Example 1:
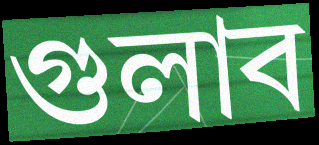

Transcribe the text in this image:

গুলাব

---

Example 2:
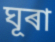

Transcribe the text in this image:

ঘূৰা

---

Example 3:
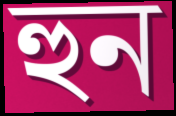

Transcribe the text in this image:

হুন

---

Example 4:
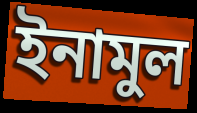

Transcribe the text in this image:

ইনামুল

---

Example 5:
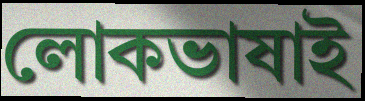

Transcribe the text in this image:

লোকভাষাই